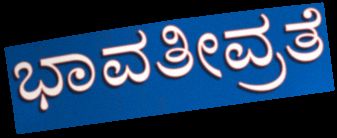
ಭಾವತೀವ್ರತೆ